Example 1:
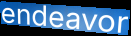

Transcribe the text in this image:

endeavor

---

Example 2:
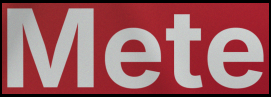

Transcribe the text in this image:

Mete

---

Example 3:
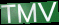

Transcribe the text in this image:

TMV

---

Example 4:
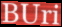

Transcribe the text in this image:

BUri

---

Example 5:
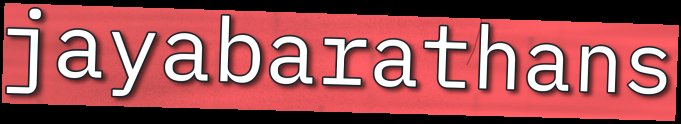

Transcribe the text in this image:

jayabarathans